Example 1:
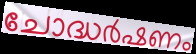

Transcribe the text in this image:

ചോദ്ധർഷണം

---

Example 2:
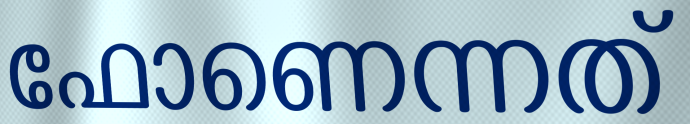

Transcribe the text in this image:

ഫോണെന്നത്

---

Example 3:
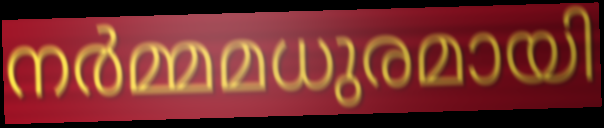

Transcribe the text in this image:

നർമ്മമധുരമായി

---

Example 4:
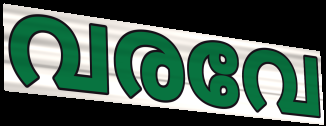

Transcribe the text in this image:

വരവേ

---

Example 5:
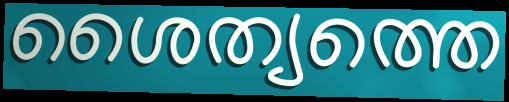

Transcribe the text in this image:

ശൈത്യത്തെ